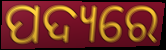
ପଦ୍ୟରେ